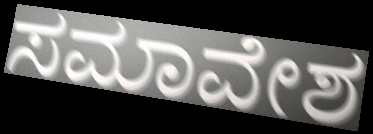
ಸಮಾವೇಶ